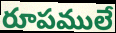
రూపములే